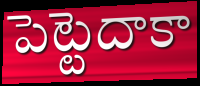
పెట్టెదాకా